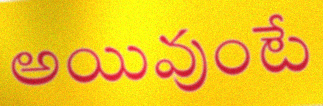
అయివుంటే